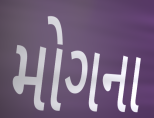
મોગના